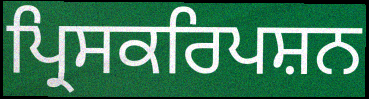
ਪ੍ਰਿਸਕਰਿਪਸ਼ਨ